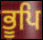
ਭੂਪਿ